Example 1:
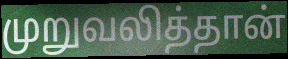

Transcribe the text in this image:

முறுவலித்தான்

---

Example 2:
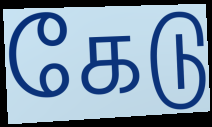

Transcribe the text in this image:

கேடு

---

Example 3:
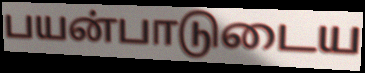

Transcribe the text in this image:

பயன்பாடுடைய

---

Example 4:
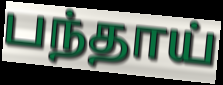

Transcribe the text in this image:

பந்தாய்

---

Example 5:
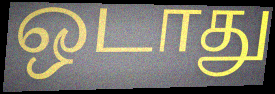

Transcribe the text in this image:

ஒடாது